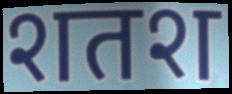
शतश